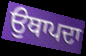
ਉਥਾਪਦਾ